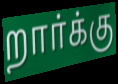
றார்க்கு